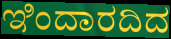
ಇಿಂದಾರದಿದ